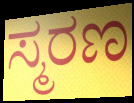
ಸ್ಮರಣ